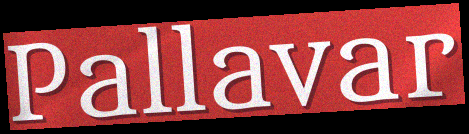
Pallavar